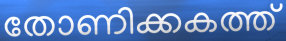
തോണിക്കകത്ത്